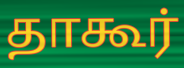
தாகூர்